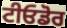
ਟੀਓਡੋਰ